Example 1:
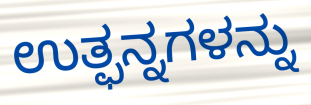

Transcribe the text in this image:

ಉತ್ಫನ್ನಗಳನ್ನು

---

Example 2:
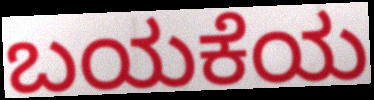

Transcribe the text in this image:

ಬಯಕೆಯ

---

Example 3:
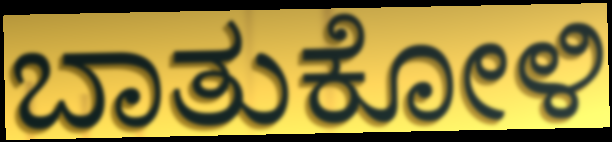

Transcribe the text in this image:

ಬಾತುಕೋಳಿ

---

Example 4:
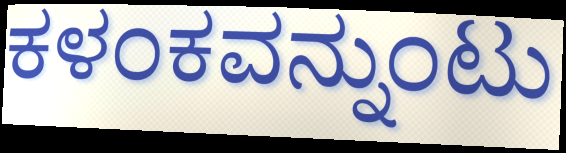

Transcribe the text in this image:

ಕಳಂಕವನ್ನುಂಟು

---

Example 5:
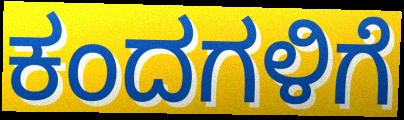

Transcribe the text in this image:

ಕಂದಗಳಿಗೆ